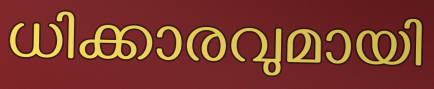
ധിക്കാരവുമായി